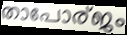
താപോര്ജം